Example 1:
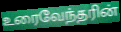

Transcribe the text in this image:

உரைவேந்தரின்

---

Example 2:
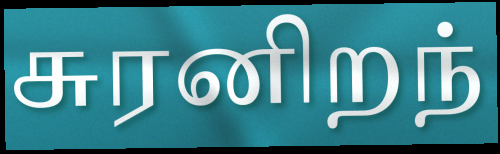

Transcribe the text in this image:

சுரனிறந்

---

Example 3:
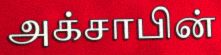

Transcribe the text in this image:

அக்சாபின்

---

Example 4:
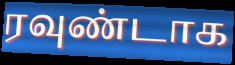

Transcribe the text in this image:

ரவுண்டாக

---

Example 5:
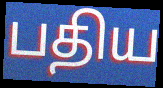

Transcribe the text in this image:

பதிய